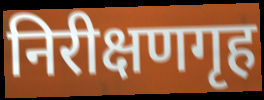
निरीक्षणगृह